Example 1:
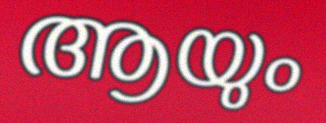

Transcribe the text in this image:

ആയും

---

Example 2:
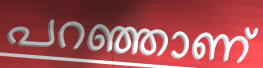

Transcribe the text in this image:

പറഞ്ഞാണ്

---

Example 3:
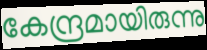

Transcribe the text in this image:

കേന്ദ്രമായിരുന്നു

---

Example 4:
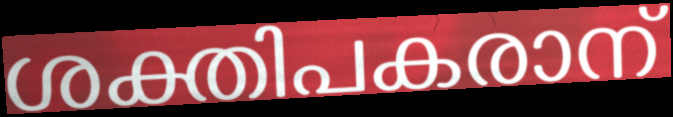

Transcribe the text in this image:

ശക്തിപകരാന്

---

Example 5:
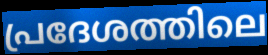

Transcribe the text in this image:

പ്രദേശത്തിലെ